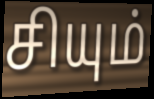
சியும்